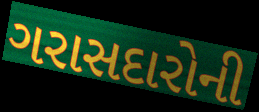
ગરાસદારોની